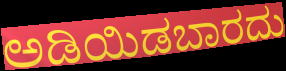
ಅಡಿಯಿಡಬಾರದು